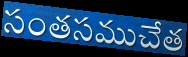
సంతసముచేత